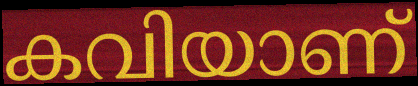
കവിയാണ്